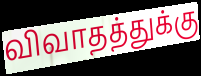
விவாதத்துக்கு